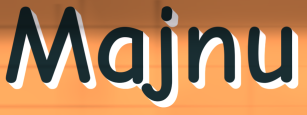
Majnu